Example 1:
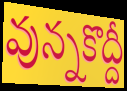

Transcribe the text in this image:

వున్నకొద్దీ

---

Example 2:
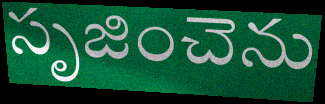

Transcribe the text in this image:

సృజించెను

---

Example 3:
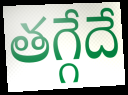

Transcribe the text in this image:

తగ్గేదే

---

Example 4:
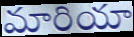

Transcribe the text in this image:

మారియా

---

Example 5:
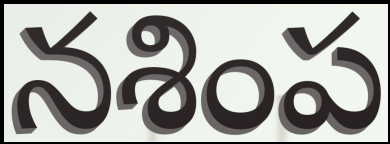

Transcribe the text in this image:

నశింప